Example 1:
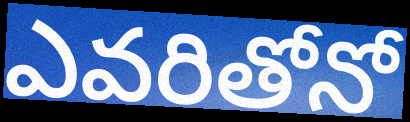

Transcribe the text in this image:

ఎవరితోనో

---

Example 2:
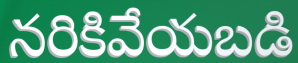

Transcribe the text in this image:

నరికివేయబడి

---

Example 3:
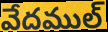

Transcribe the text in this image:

వేదముల్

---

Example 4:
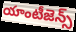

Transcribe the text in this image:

యాంటీజెన్స్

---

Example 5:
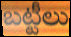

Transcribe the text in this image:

బట్టీలు